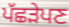
ਪੱਛੜੇਪਣ